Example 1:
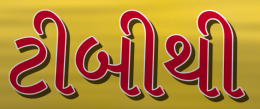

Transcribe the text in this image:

ટીબીથી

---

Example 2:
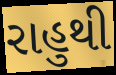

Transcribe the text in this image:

રાહુથી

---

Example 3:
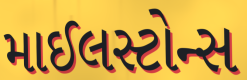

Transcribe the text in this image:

માઈલસ્ટોન્સ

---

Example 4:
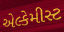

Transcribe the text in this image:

એલ્કેમીસ્ટ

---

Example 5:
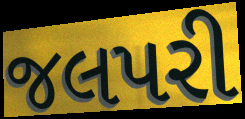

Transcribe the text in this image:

જલપરી